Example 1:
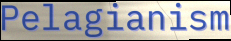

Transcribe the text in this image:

Pelagianism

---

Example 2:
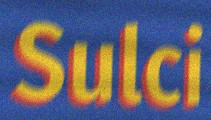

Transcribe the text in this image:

Sulci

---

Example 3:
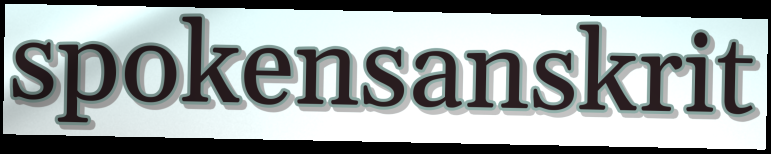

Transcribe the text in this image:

spokensanskrit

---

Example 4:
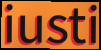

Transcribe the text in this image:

iusti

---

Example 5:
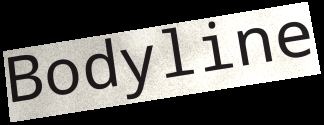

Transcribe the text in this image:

Bodyline